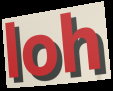
loh